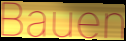
Bauen